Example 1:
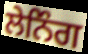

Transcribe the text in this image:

ਲੇਨਿੰਗ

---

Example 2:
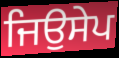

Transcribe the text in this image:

ਜਿਉਸੇਪ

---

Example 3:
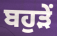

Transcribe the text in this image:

ਬਹੁੜੇਂ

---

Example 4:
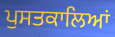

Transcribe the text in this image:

ਪੁਸਤਕਾਲਿਆਂ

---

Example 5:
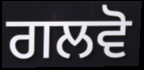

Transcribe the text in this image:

ਗਲਵੋ